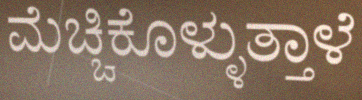
ಮೆಚ್ಚಿಕೊಳ್ಳುತ್ತಾಳೆ